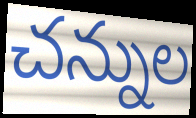
చన్నుల